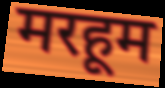
मरहूम